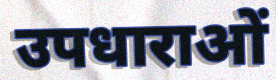
उपधाराओं